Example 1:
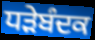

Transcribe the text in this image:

ਧੜੇਬੰਦਕ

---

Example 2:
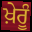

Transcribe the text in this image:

ਖ਼ੇਰੂੰ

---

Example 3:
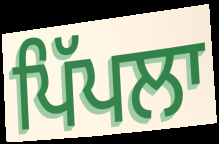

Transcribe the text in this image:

ਪਿੱਪਲਾ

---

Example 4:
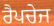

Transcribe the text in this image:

ਰੈਪਚੇਜ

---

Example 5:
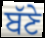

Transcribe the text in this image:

ਬੱਣੇ